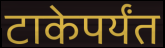
टाकेपर्यंत